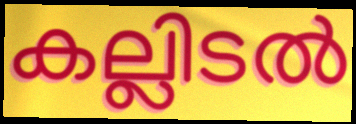
കല്ലിടൽ